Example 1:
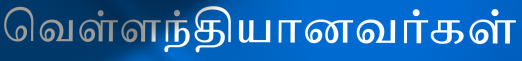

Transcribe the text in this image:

வெள்ளந்தியானவர்கள்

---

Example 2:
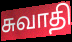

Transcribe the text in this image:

சுவாதி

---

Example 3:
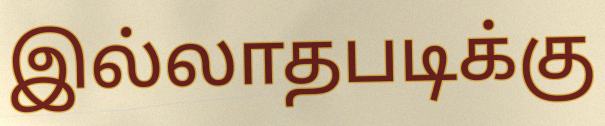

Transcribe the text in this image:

இல்லாதபடிக்கு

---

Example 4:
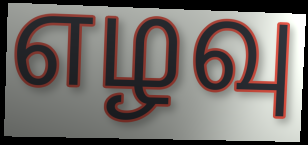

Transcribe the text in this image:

எழவு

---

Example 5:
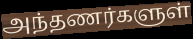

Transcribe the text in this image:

அந்தணர்களுள்